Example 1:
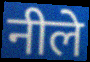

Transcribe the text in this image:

नीले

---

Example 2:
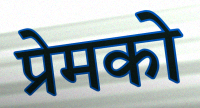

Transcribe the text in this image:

प्रेमको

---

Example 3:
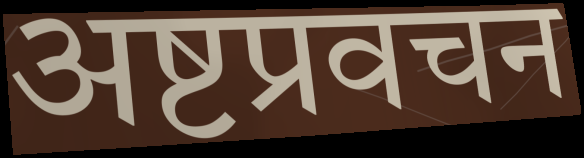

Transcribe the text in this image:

अष्टप्रवचन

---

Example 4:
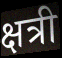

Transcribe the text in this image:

क्षत्री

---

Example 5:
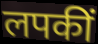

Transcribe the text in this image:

लपकीं